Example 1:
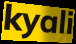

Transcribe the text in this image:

kyali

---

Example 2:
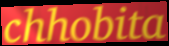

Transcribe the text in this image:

chhobita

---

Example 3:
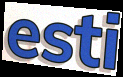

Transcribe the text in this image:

esti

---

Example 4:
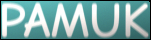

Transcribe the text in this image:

PAMUK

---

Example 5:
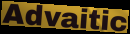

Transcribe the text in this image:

Advaitic